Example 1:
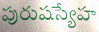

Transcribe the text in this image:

పురుషస్యేహ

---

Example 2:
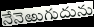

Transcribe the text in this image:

నేనెఱుగుదును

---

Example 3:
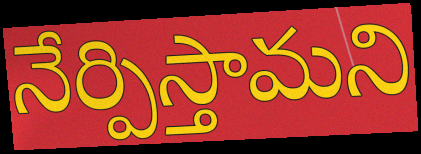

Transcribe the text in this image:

నేర్పిస్తామని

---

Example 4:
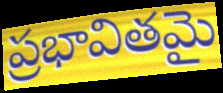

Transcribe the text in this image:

ప్రభావితమై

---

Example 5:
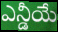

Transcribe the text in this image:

ఎన్డీయే